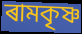
ৰামকৃষ্ণ